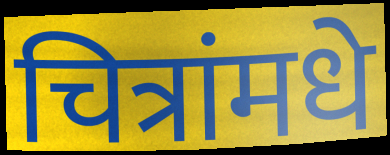
चित्रांमधे